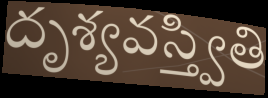
దృశ్యవస్త్వితి